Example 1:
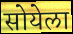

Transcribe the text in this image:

सोयेला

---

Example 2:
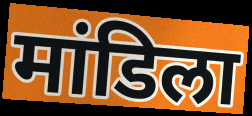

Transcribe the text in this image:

मांडिला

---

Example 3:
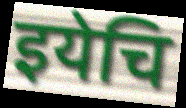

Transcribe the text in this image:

इयेचि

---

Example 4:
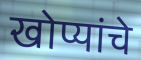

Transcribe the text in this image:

खोप्यांचे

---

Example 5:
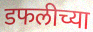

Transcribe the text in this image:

डफलीच्या